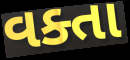
વક્તા